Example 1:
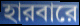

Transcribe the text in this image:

হারবারে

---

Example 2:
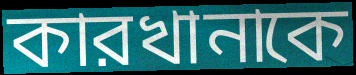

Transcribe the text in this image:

কারখানাকে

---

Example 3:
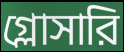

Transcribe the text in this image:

গ্লোসারি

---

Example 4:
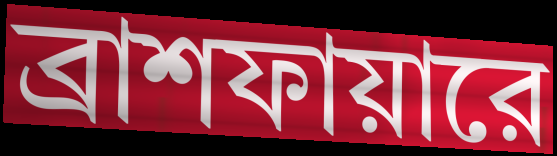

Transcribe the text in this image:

ব্রাশফায়ারে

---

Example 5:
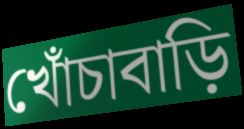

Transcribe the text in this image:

খোঁচাবাড়ি